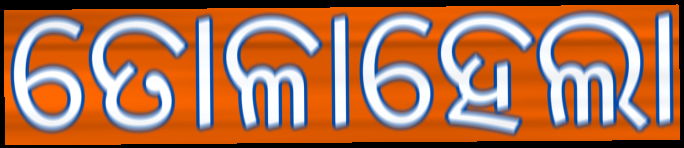
ତୋଳାହେଲା